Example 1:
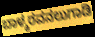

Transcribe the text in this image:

ಬಾಳ್ಮರವನಲುಗಾಡಿ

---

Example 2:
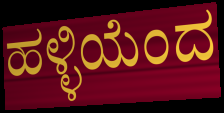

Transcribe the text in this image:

ಹಳ್ಳಿಯೆಂದ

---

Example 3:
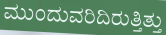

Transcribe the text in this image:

ಮುಂದುವರಿದಿರುತ್ತಿತ್ತು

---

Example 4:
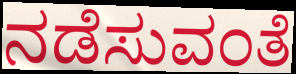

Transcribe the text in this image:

ನಡೆಸುವಂತೆ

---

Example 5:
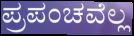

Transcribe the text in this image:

ಪ್ರಪಂಚವೆಲ್ಲ